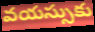
వయస్సుకు